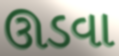
ઊડવા